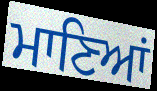
ਮਾਣਿਆਂ